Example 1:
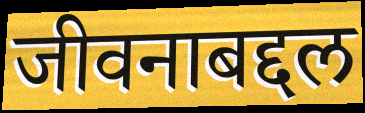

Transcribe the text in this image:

जीवनाबद्दल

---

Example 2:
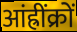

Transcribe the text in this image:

आंह्रींक्रों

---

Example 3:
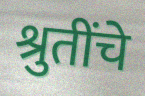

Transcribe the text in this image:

श्रुतींचे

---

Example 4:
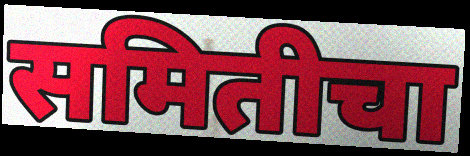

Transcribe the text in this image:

समितीचा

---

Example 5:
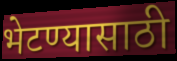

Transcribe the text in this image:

भेटण्यासाठी